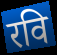
रवि